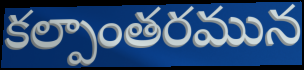
కల్పాంతరమున